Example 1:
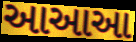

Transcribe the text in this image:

આઆઆ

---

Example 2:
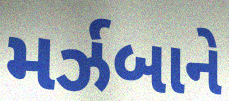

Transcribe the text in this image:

મર્ઝબાને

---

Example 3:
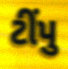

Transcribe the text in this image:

ટીંપુ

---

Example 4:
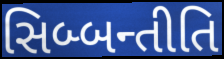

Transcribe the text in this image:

સિબ્બન્તીતિ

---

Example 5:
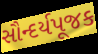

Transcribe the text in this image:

સૌન્દર્યપૂજક